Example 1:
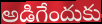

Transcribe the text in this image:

అడిగేందుకు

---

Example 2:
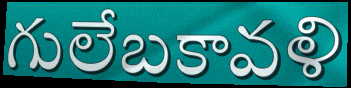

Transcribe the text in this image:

గులేబకావళి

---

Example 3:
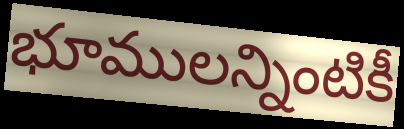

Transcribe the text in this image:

భూములన్నింటికీ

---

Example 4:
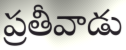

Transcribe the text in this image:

ప్రతీవాడు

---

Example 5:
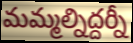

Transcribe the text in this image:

మమ్మల్నిద్దర్నీ